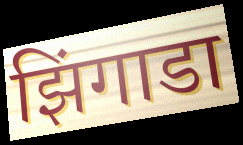
झिंगाडा